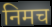
निमच